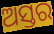
ଅସ୍ତର